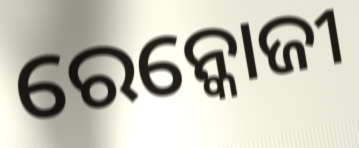
ରେନ୍କୋଜୀ